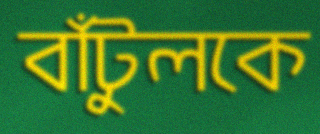
বাঁটুলকে